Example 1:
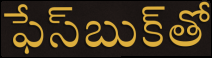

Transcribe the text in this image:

ఫేస్‌బుక్‌తో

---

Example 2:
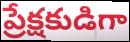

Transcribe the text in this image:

ప్రేక్షకుడిగా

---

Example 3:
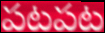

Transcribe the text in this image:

పటపట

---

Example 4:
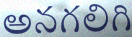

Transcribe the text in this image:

అనగలిగి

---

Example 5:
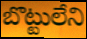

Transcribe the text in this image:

బొట్టులేని